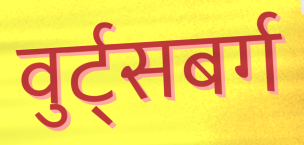
वुर्ट्सबर्ग